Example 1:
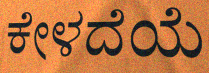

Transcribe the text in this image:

ಕೇಳದೆಯೆ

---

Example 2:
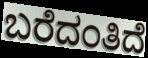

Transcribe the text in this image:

ಬರೆದಂತಿದೆ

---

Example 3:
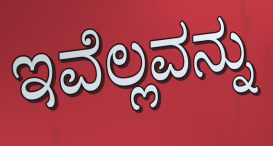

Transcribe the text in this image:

ಇವೆಲ್ಲವನ್ನು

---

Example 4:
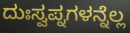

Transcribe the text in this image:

ದುಃಸ್ವಪ್ನಗಳನ್ನೆಲ್ಲ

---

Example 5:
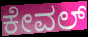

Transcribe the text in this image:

ಕೇವಲ್